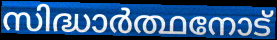
സിദ്ധാർത്ഥനോട്